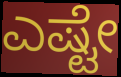
ಎಷ್ಟೇ